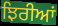
ਝਿਰੀਆਂ